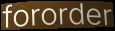
fororder